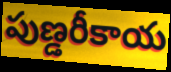
పుణ్డరీకాయ